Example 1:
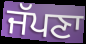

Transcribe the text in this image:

ਜੱਪਣਾ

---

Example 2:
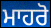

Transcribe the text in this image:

ਮਾਹਰੋ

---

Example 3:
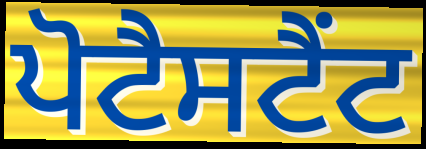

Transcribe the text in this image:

ਪੋਟੈਸਟੈਂਟ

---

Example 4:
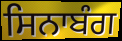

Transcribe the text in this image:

ਸਿਨਾਬੰਗ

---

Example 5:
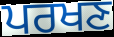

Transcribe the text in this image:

ਪਰਖਣ